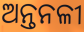
ଅନ୍ତନଳୀ